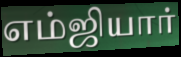
எம்ஜியார்